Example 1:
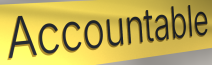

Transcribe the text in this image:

Accountable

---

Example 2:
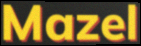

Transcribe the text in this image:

Mazel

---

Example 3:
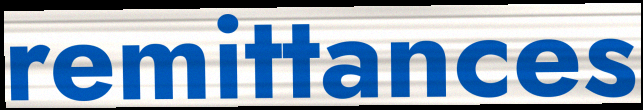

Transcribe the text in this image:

remittances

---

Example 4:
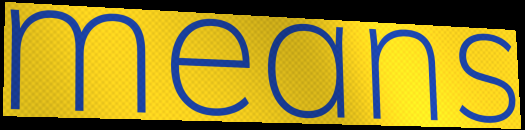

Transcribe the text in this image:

means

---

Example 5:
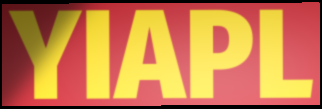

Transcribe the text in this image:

YIAPL